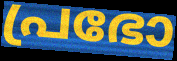
പ്രഭോ